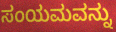
ಸಂಯಮವನ್ನು